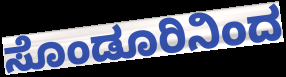
ಸೊಂಡೂರಿನಿಂದ